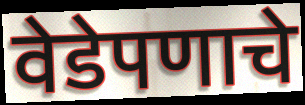
वेडेपणाचे